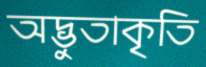
অদ্ভুতাকৃতি